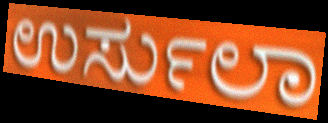
ಉರ್ಸುಲಾ